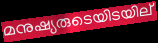
മനുഷ്യരുടെയിടയില്